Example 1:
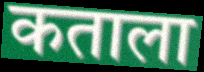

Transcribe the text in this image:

कताला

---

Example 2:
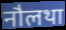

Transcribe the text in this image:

नौलथा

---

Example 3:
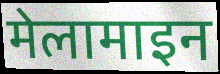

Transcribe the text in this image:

मेलामाइन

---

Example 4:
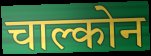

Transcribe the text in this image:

चाल्कोन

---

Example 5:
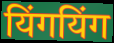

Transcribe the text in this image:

यिंगयिंग